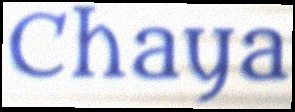
Chaya